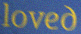
loved